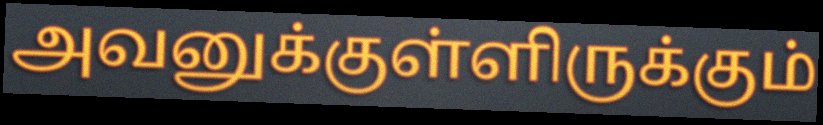
அவனுக்குள்ளிருக்கும்